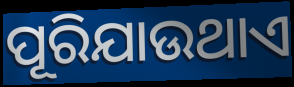
ପୂରିଯାଉଥାଏ